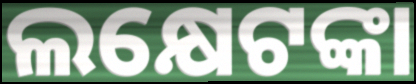
ଲକ୍ଷେଟଙ୍କା